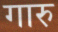
गारु